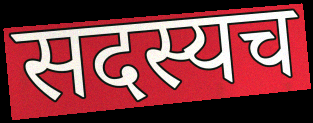
सदस्यच